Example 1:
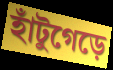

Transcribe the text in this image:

হাঁটুগেড়ে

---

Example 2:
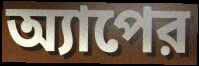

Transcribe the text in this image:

অ্যাপের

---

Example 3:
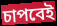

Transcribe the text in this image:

চাপবেই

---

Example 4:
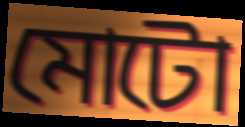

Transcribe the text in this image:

মোটো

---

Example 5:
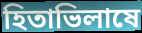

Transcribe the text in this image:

হিতাভিলাষে